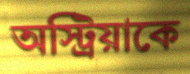
অস্ট্রিয়াকে